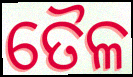
ତୈଳ